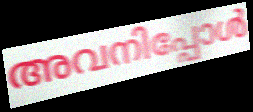
അവനിപ്പോൾ